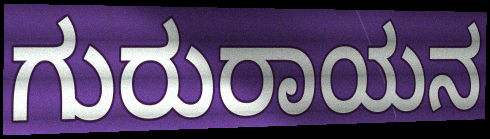
ಗುರುರಾಯನ